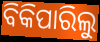
ବିକିପାରିଲୁ